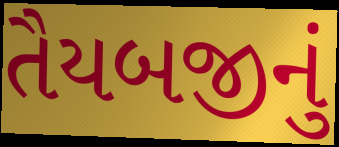
તૈયબજીનું